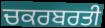
ਚਕਰਬਰਤੀ